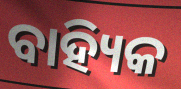
ବାହ୍ୟିକ